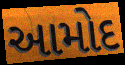
આમોદ